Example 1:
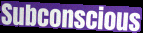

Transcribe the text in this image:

Subconscious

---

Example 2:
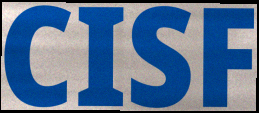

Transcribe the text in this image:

CISF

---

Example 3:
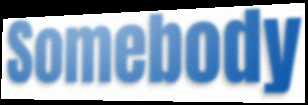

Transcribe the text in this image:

Somebody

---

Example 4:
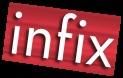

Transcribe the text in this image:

infix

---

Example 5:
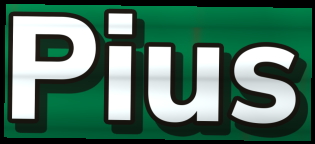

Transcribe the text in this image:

Pius